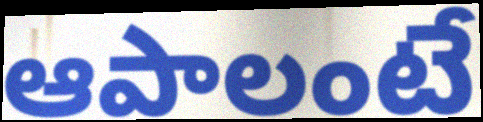
ఆపాలంటే